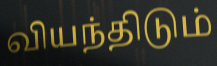
வியந்திடும்